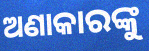
ଅଣାକାରଙ୍କୁ